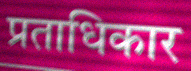
प्रताधिकार